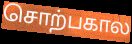
சொற்பகால